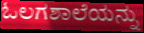
ಓಲಗಶಾಲೆಯನ್ನು